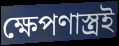
ক্ষেপণাস্ত্রই